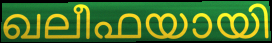
ഖലീഫയായി